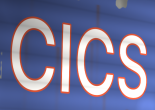
CICS